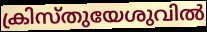
ക്രിസ്തുയേശുവിൽ